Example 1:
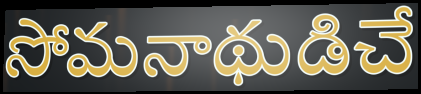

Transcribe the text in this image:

సోమనాథుడిచే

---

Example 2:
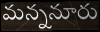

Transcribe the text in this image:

మన్ననూరు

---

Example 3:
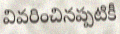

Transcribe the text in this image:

వివరించినప్పటికీ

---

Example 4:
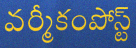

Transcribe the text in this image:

వర్మీకంపోస్ట్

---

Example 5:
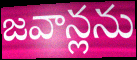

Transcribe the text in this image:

జవాన్లను